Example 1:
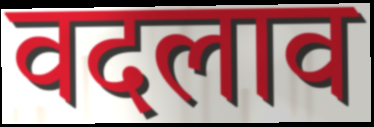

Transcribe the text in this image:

वदलाव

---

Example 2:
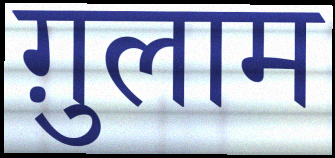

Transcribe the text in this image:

ग़ुलाम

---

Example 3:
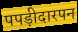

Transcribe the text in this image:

पपड़ीदारपन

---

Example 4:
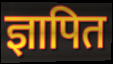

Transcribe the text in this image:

ज्ञापित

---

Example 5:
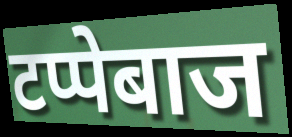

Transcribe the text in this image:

टप्पेबाज